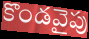
కొండవైపు